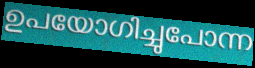
ഉപയോഗിച്ചുപോന്ന